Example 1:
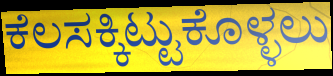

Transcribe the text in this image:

ಕೆಲಸಕ್ಕಿಟ್ಟುಕೊಳ್ಳಲು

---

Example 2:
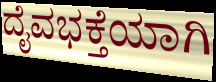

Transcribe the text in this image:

ದೈವಭಕ್ತೆಯಾಗಿ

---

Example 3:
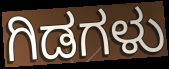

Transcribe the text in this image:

ಗಿಡಗಳು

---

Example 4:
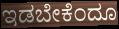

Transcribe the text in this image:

ಇಡಬೇಕೆಂದೂ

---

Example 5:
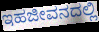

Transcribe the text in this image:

ಇಹಜೀವನದಲ್ಲಿ